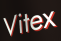
Vitex